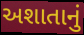
અશાતાનું